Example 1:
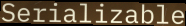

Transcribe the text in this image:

Serializable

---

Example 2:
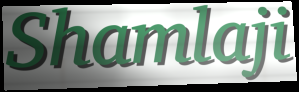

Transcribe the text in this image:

Shamlaji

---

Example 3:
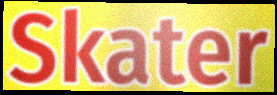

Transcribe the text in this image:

Skater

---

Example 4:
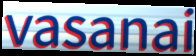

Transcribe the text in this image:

vasanai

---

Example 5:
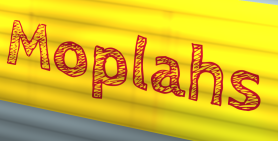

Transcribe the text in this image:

Moplahs